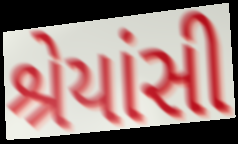
શ્રેયાંસી